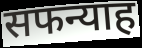
सफन्याह